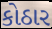
કોઠાર